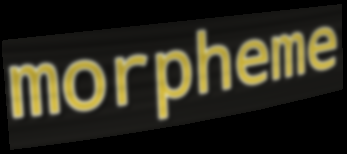
morpheme